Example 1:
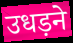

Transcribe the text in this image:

उधड़ने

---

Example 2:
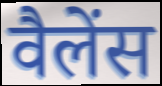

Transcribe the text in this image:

वैलेंस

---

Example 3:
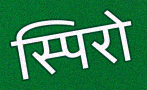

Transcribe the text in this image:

स्पिरो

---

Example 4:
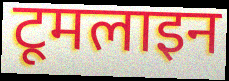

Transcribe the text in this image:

टूमलाइन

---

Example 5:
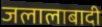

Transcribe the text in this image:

जलालाबादी